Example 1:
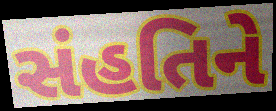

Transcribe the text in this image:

સંહતિને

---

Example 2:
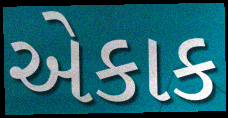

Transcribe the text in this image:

એકાક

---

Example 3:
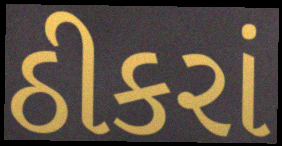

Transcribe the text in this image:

ઠીકરાં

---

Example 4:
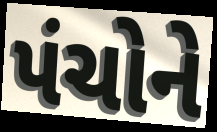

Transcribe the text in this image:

પંચોને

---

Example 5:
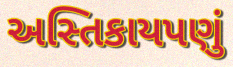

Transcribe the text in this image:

અસ્તિકાયપણું